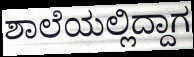
ಶಾಲೆಯಲ್ಲಿದ್ದಾಗ